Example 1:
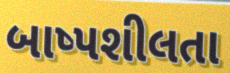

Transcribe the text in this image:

બાષ્પશીલતા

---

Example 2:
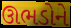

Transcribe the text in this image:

ઊભડોને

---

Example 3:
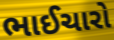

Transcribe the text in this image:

ભાઈચારો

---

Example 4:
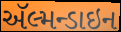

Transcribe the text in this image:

ઍલ્મન્ડાઇન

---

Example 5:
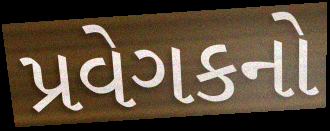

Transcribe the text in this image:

પ્રવેગકનો